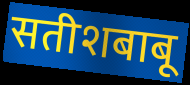
सतीशबाबू